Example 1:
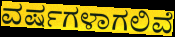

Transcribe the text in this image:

ವರ್ಷಗಳಾಗಲಿವೆ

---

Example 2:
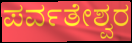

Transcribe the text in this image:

ಪರ್ವತೇಶ್ವರ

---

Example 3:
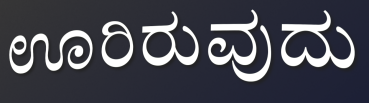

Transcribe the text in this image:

ಊರಿರುವುದು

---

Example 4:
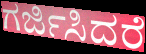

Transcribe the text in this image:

ಗರ್ಜಿಸಿದರೆ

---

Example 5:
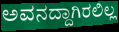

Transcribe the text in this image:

ಅವನದ್ದಾಗಿರಲಿಲ್ಲ